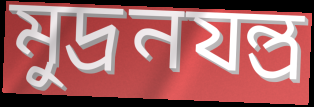
মুদ্রনযন্ত্র